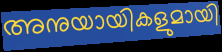
അനുയായികളുമായി